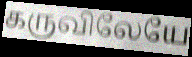
கருவிலேயே